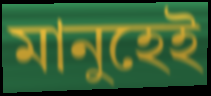
মানুহেই